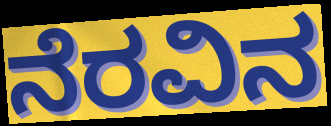
ನೆರವಿನ